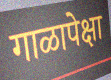
गाळापेक्षा